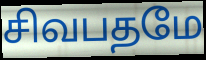
சிவபதமே